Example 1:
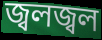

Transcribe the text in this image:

জ্বলজ্বল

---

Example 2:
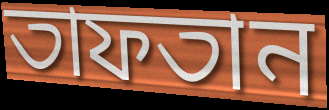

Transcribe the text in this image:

তাফতান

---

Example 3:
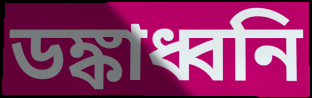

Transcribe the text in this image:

ডঙ্কাধ্বনি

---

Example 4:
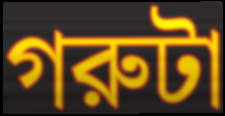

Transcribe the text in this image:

গরুটা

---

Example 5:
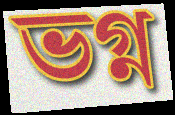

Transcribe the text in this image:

ভগ্ন